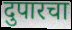
दुपारचा